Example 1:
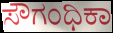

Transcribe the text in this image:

ಸೌಗಂಧಿಕಾ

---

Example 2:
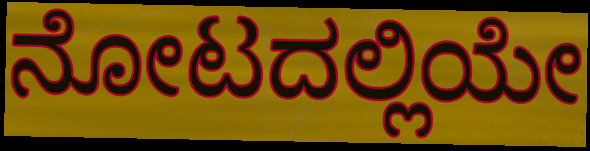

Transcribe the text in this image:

ನೋಟದಲ್ಲಿಯೇ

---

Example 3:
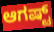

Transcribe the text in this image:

ಆಗಷ್ಟ್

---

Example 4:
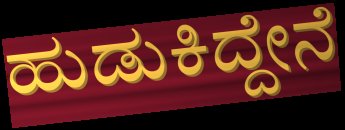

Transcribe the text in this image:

ಹುಡುಕಿದ್ದೇನೆ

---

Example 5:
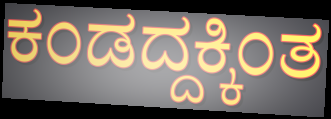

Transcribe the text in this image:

ಕಂಡದ್ದಕ್ಕಿಂತ